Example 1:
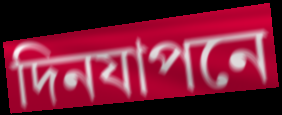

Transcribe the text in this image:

দিনযাপনে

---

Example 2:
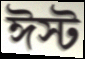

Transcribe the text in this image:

ঈস্ট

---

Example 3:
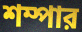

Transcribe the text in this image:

শম্পার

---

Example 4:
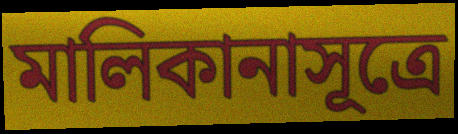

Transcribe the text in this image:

মালিকানাসূত্রে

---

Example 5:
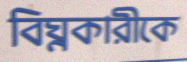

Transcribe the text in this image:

বিঘ্নকারীকে